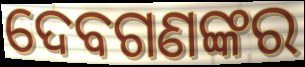
ଦେବଗଣଙ୍କର